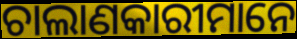
ଚାଲାଣକାରୀମାନେ